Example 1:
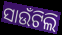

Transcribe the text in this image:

ସାଉଁଟିଲି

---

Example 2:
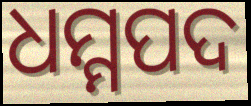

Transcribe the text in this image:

ଧମ୍ମପଦ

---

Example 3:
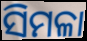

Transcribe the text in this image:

ସିମଳା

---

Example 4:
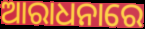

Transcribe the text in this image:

ଆରାଧନାରେ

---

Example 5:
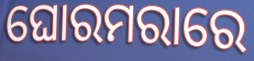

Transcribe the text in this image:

ଘୋରମରାରେ